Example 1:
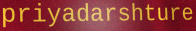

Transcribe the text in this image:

priyadarshture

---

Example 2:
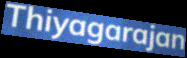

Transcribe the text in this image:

Thiyagarajan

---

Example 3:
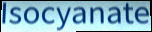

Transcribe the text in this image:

Isocyanate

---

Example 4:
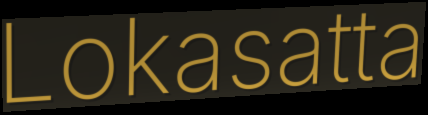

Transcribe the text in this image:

Lokasatta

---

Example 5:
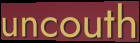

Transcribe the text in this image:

uncouth